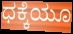
ಧಕ್ಕೆಯೂ